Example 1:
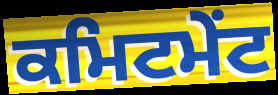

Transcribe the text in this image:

ਕਮਿਟਮੇਂਟ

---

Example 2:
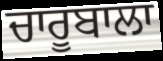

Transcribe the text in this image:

ਚਾਰੂਬਾਲਾ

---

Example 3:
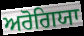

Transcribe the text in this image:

ਅਰੋਗਿਯਾ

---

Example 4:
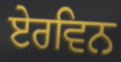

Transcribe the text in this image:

ਏਰਵਿਨ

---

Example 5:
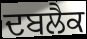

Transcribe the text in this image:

ਦਬਲੈਕ